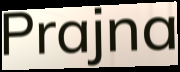
Prajna